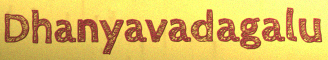
Dhanyavadagalu